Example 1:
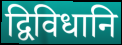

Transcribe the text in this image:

द्विविधानि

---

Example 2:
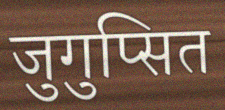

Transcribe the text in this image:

जुगुप्सित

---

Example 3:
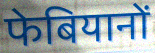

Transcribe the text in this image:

फेबियानों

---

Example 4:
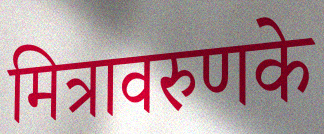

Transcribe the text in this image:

मित्रावरुणके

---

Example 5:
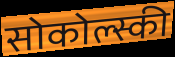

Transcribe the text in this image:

सोकोल्स्की